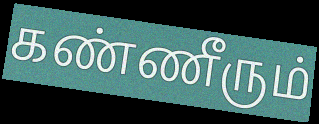
கண்ணீரும்